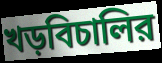
খড়বিচালির